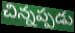
చిన్నప్పడు